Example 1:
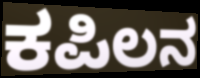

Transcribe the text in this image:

ಕಪಿಲನ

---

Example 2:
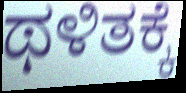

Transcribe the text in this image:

ಥಳಿತಕ್ಕೆ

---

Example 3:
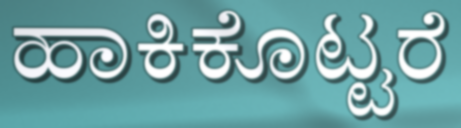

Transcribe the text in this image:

ಹಾಕಿಕೊಟ್ಟರೆ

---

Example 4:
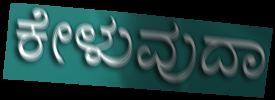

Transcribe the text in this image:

ಕೇಳುವುದಾ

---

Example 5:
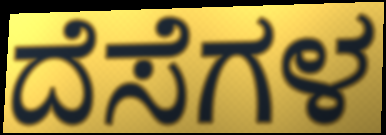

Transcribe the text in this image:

ದೆಸೆಗಳ